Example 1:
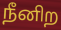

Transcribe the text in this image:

நீனிற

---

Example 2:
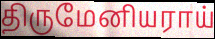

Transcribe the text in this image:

திருமேனியராய்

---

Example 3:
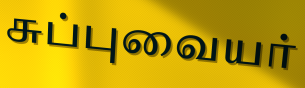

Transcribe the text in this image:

சுப்புவையர்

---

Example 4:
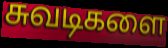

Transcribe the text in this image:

சுவடிகளை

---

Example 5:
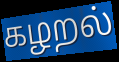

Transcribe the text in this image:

கழறல்